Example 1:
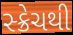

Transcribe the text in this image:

સ્ક્રેચથી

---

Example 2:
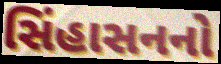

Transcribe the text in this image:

સિંહાસનનો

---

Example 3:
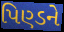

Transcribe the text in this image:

પિણ્ડને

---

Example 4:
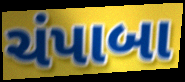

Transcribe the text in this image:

ચંપાબા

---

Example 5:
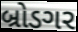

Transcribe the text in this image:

બ્રોડગર